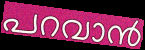
പറവാൻ